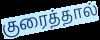
குரைத்தால்